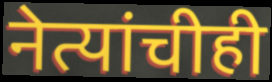
नेत्यांचीही